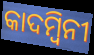
କାଦମ୍ୱିନୀ